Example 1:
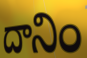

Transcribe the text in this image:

దానిం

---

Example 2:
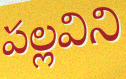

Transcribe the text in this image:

పల్లవిని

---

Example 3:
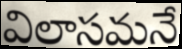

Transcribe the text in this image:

విలాసమనే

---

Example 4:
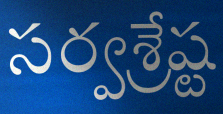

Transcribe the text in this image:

సర్వశ్రేష్ట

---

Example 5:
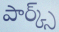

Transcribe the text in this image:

పార్క్స్